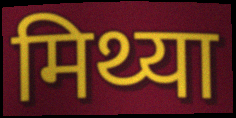
मिथ्‍या